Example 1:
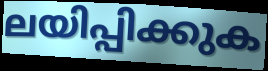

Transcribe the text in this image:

ലയിപ്പിക്കുക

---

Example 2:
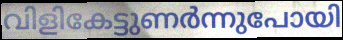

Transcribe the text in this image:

വിളികേട്ടുണർന്നുപോയി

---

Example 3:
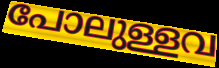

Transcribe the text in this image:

പോലുള്ളവ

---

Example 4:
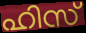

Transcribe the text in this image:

ഹിസ്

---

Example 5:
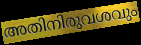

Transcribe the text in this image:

അതിനിരുവശവും